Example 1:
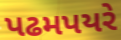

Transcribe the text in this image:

પઢમપયરે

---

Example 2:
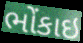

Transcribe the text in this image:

ભોંકાઇ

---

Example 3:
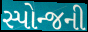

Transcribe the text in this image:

સ્પોન્જની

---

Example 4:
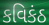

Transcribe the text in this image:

કવિકંઠ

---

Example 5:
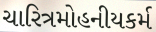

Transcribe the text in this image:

ચારિત્રમોહનીયકર્મ